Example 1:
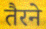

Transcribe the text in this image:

तैरने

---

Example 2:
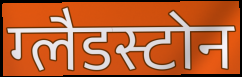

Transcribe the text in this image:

ग्लैडस्टोन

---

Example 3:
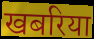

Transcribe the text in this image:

खबरिया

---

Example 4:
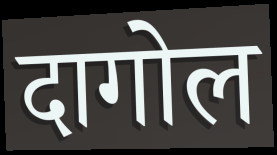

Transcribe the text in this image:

दागोल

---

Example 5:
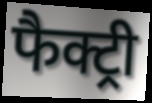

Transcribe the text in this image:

फैक्ट्री